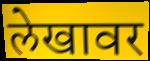
लेखावर